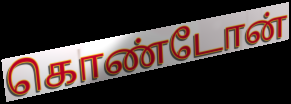
கொண்டோன்